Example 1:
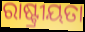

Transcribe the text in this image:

ରାଷ୍ଟ୍ରୀୟତା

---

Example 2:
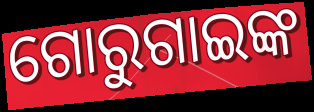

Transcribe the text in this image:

ଗୋରୁଗାଇଙ୍କ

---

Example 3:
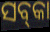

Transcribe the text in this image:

ସବ୍‌କା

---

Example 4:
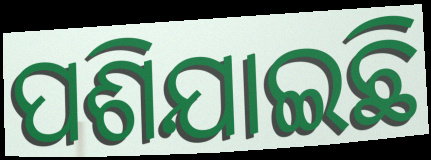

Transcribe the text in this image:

ପଶିଯାଇଛି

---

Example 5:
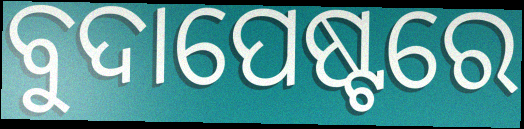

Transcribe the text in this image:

ବୁଦାପେଷ୍ଟରେ